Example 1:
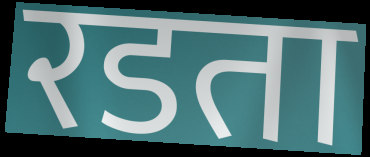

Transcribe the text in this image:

रडता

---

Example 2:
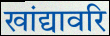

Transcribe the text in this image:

खांद्यावरि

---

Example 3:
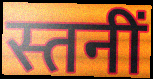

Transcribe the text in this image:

स्तनीं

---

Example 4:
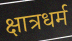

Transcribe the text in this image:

क्षात्रधर्म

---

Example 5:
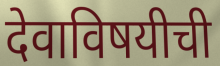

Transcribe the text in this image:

देवाविषयीची